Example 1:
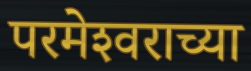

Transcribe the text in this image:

परमेश्‍वराच्या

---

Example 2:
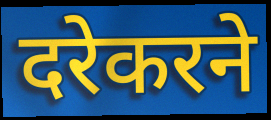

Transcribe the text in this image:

दरेकरने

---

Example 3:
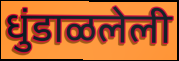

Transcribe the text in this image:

धुंडाळलेली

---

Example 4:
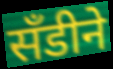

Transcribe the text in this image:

सॅंडीने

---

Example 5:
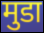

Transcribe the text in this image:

मुडा